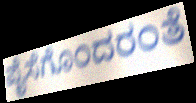
ಪೈಸೆಗೊಂದರಂತೆ